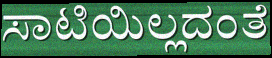
ಸಾಟಿಯಿಲ್ಲದಂತೆ